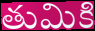
తుమికి